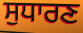
ਸੁਧਾਰਣ